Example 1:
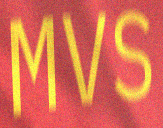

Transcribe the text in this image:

MVS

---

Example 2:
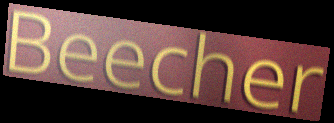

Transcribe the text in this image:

Beecher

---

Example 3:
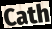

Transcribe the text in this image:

Cath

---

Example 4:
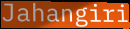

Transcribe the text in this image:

Jahangiri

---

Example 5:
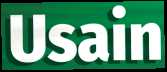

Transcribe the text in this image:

Usain